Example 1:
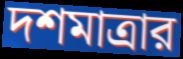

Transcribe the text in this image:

দশমাত্রার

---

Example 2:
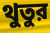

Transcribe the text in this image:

থুতুর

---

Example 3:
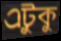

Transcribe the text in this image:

এটুকু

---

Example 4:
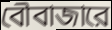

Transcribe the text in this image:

বৌবাজারে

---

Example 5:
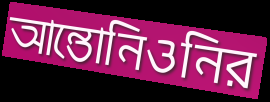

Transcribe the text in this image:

আন্তোনিওনির